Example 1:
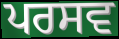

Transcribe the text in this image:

ਪਰਸਵ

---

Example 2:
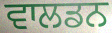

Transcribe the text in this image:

ਵਾਲਡਨ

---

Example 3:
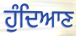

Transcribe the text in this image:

ਹੁੰਦਿਆਣ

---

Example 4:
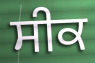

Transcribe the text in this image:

ਸੀਕ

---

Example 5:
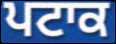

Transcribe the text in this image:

ਪਟਾਕ